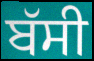
ਬੱਸੀ